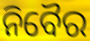
ନିବୈର